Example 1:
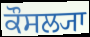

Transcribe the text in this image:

ਕੌਸਲ੍ਯਾ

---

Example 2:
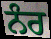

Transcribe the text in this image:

ਨੰਰ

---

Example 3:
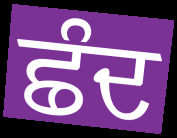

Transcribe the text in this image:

ਛੰਦ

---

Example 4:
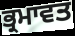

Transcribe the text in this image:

ਭ੍ਰਮਾਵਤ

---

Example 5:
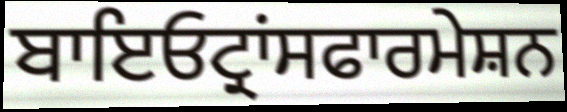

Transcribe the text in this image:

ਬਾਇਓਟ੍ਰਾਂਸਫਾਰਮੇਸ਼ਨ